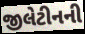
જીલેટીનની